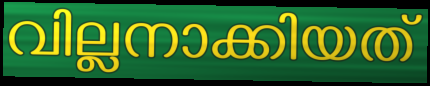
വില്ലനാക്കിയത്